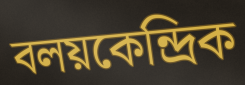
বলয়কেন্দ্রিক